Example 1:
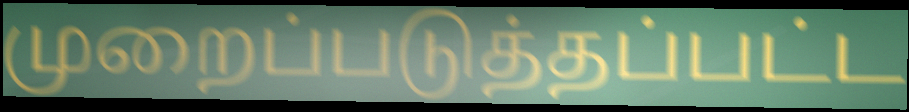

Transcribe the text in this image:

முறைப்படுத்தப்பட்ட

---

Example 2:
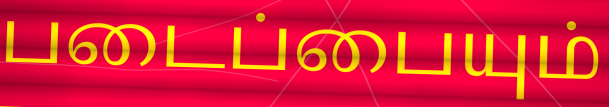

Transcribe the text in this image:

படைப்பையும்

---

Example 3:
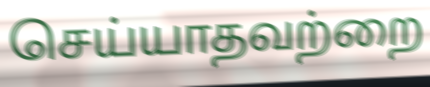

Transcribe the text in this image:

செய்யாதவற்றை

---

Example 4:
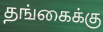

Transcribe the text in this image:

தங்கைக்கு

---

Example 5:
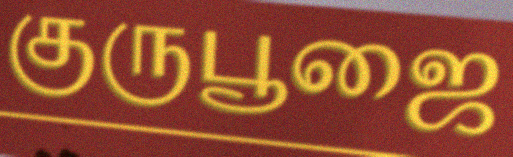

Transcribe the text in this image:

குருபூஜை